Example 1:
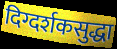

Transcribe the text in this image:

दिग्दर्शकसुद्धा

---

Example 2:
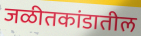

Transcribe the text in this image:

जळीतकांडातील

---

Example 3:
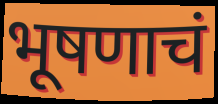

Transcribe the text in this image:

भूषणाचं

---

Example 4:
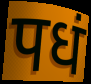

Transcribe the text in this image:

पधं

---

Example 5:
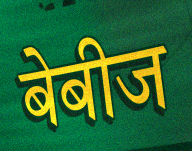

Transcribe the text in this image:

बेबीज